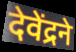
देवेंद्रने